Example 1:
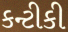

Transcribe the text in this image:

કન્ટીકી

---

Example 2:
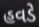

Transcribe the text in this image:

હવડે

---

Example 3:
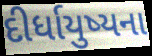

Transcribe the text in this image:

દીર્ધાયુષ્યના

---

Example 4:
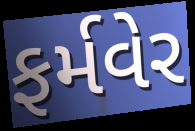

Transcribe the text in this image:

ફર્મવેર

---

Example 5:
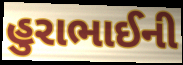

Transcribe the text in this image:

હુરાભાઈની